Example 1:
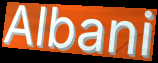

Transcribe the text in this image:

Albani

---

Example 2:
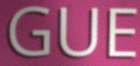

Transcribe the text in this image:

GUE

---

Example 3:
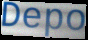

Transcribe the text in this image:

Depo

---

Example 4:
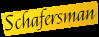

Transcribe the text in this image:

Schafersman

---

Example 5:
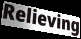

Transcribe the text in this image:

Relieving